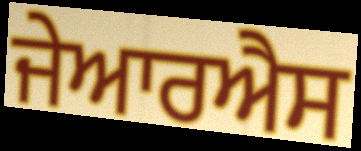
ਜੇਆਰਐਸ